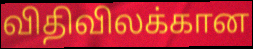
விதிவிலக்கான